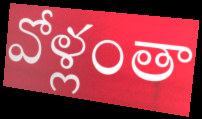
వోళ్లంతా